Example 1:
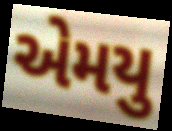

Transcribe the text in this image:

એમયુ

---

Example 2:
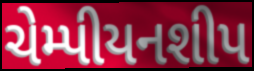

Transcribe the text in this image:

ચેમ્પીયનશીપ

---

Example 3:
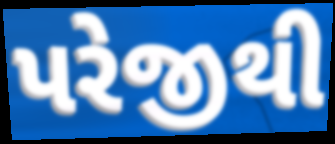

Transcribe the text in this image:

પરેજીથી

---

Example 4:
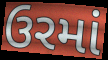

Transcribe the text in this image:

ઉરમાં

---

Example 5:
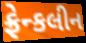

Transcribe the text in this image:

ફ્રેન્કલીન